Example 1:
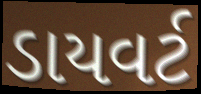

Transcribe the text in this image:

ડાયવર્ટ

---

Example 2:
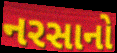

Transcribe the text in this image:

નરસાનો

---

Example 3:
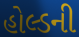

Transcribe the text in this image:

હોલ્ડની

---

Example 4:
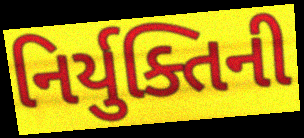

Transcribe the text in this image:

નિર્યુક્તિની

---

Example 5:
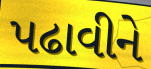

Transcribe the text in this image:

પઢાવીને